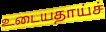
உடையதாய்ச்